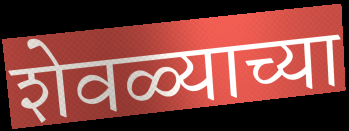
शेवळ्याच्या